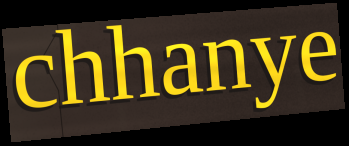
chhanye